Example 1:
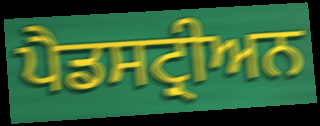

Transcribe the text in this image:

ਪੈਡਸਟ੍ਰੀਅਨ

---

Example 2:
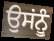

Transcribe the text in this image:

ਉਸਂਨੂੰ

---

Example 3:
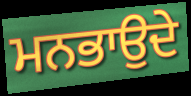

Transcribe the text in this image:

ਮਨਭਾਉਦੇ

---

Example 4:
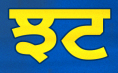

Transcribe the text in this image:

ਝਟ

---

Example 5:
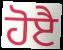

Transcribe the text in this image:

ਹੋੲੈ